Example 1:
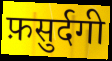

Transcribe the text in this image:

फ़सुर्दगी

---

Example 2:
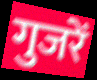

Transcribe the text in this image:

गुजरें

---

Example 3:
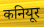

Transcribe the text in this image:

कनियूर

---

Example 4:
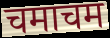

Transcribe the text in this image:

चमाचम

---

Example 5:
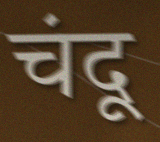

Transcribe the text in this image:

चंदू